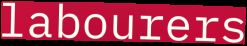
labourers